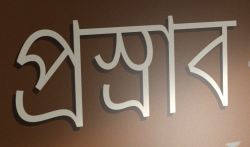
প্রস্রাব